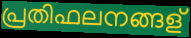
പ്രതിഫലനങ്ങള്